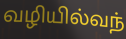
வழியில்வந்